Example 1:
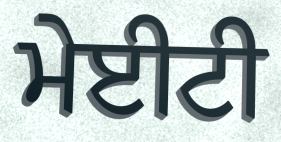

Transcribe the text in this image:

ਮੇਈਟੀ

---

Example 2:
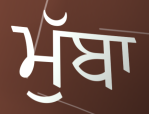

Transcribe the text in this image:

ਮੁੱਬਾ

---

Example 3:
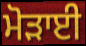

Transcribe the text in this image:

ਮੋੜਾਈ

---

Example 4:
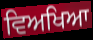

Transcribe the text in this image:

ਵਿਅਖਿਆ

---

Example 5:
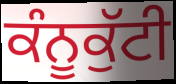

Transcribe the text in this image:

ਕੰਨੂਕੁੱਟੀ